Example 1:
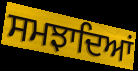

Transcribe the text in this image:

ਸਮਝਾਦਿਆਂ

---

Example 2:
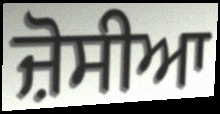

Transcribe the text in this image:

ਜ਼ੋਸੀਆ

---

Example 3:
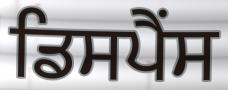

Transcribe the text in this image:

ਡਿਸਪੈਂਸ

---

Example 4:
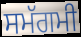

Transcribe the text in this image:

ਸਮੱਗਮੀ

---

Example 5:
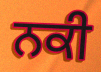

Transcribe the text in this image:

ਨਕੀ